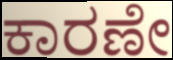
ಕಾರಣೇ